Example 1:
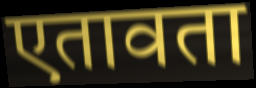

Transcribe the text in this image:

एतावता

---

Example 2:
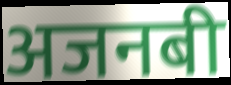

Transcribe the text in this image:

अजनबी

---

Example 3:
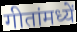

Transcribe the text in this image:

गीतांमध्यें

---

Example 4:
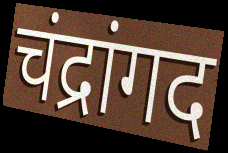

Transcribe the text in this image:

चंद्रांगद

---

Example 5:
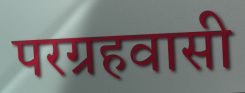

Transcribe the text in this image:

परग्रहवासी